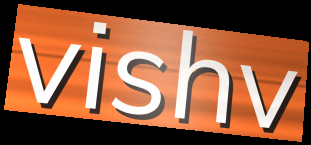
vishv